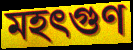
মহৎগুণ